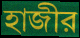
হাজীর